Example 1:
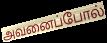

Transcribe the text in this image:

அவனைப்போல்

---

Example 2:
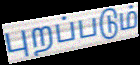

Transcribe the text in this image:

புறப்படும்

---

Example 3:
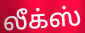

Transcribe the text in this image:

லீக்ஸ்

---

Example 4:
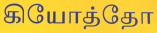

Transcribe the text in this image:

கியோத்தோ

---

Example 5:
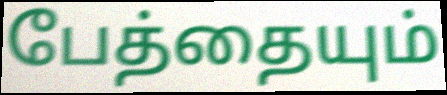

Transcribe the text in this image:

பேத்தையும்